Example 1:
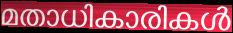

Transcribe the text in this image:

മതാധികാരികൾ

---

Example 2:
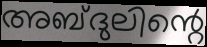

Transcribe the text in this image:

അബ്ദുലിന്റെ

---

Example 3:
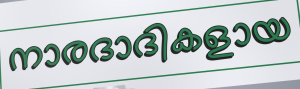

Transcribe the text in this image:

നാരദാദികളായ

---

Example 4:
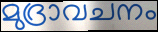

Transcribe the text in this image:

മുദ്രാവചനം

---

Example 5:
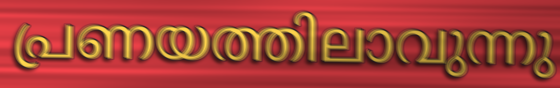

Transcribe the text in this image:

പ്രണയത്തിലാവുന്നു